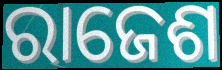
ରାଜେଶ